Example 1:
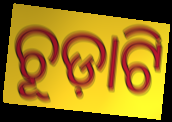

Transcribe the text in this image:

ଚୂଡ଼ାଟି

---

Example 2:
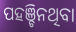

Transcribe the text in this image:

ପହଞ୍ଚିନଥିବା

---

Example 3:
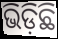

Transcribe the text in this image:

ଭିଡ଼ିଛି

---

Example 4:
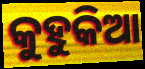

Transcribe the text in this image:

କୁହୁକିଆ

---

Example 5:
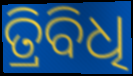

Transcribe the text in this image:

ତ୍ରିବିଧି